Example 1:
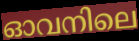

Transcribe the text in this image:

ഓവനിലെ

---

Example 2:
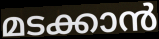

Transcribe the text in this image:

മടക്കാൻ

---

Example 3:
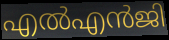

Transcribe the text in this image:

എൽഎൻജി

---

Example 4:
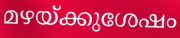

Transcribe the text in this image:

മഴയ്ക്കുശേഷം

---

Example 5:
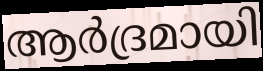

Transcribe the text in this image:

ആർദ്രമായി